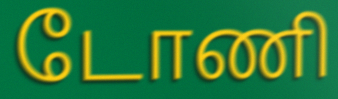
டோணி